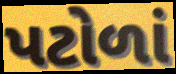
પટોળાં